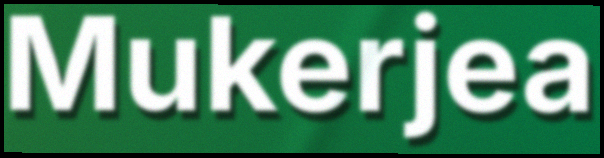
Mukerjea